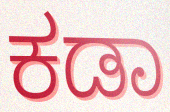
ಕಡಾ